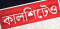
কালশিটেও